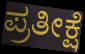
ಪ್ರತೀಕ್ಷೆ